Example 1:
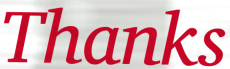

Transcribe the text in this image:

Thanks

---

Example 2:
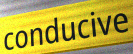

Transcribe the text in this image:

conducive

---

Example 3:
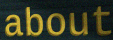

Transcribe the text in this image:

about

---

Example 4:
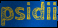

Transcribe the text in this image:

psidii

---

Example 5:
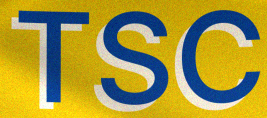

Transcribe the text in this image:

TSC